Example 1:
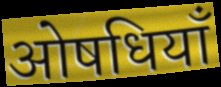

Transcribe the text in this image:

ओषधियाँ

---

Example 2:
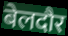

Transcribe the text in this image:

बेलदौर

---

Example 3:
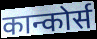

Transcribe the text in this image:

कान्कोर्स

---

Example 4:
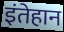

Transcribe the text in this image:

इंतेहान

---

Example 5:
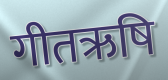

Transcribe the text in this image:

गीतऋषि